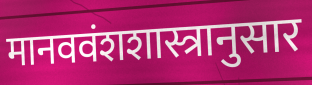
मानववंशशास्त्रानुसार